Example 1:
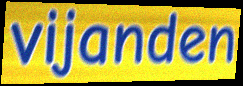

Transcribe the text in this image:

vijanden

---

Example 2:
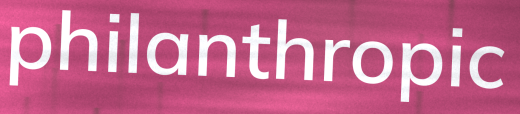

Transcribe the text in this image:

philanthropic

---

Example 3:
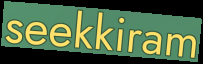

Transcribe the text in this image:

seekkiram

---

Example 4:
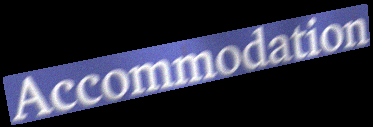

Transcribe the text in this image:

Accommodation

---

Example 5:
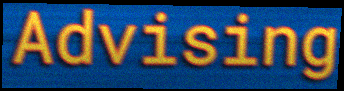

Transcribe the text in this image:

Advising